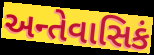
અન્તેવાસિકં